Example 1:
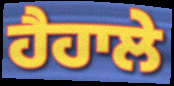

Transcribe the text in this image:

ਹੈਹਾਲੇ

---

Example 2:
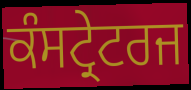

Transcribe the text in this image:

ਕੰਸਟ੍ਰੇਟਰਜ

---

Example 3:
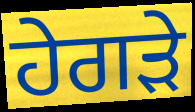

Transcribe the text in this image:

ਹੇਗੜੇ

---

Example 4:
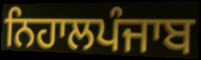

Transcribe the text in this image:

ਨਿਹਾਲਪੰਜਾਬ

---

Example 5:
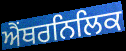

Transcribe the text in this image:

ਐਂਥਰਨਿਲਿਕ